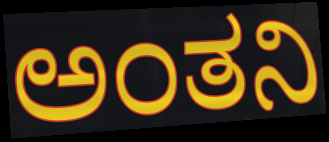
ಅಂತನಿ